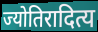
ज्योतिरादित्य